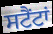
ਸਟੈਂਟਾਂ